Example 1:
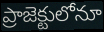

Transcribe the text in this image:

ప్రాజెక్టులోనూ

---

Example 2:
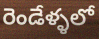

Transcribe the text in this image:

రెండేళ్ళలో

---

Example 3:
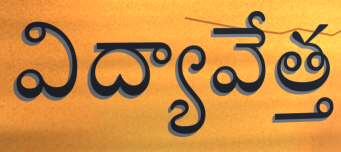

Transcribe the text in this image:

విద్యావేత్త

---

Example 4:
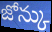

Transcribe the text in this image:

జోన్కు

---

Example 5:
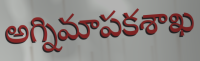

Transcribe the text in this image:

అగ్నిమాపకశాఖ